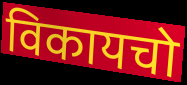
विकायचो